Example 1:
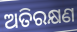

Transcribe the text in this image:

ଅତିରକ୍ଷଣ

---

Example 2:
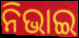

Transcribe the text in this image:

ନିଭାଇ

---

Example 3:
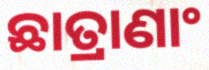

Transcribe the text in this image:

ଛାତ୍ରାଣାଂ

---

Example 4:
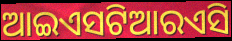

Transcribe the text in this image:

ଆଇଏସଟିଆରଏସି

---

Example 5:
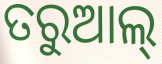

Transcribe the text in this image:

ତରୁଆଲ୍